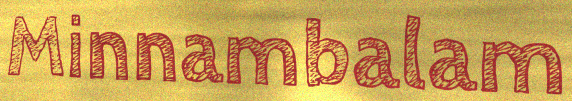
Minnambalam